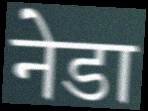
नेडा